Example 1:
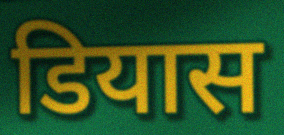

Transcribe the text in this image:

डियास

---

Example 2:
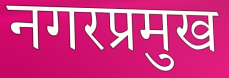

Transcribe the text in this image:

नगरप्रमुख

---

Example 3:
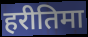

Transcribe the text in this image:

हरीतिमा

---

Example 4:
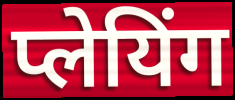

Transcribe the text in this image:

प्लेयिंग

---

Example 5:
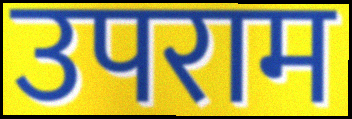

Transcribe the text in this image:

उपराम